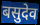
बसुदेव